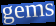
gems